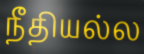
நீதியல்ல